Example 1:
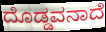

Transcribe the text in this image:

ದೊಡ್ಡವನಾದೆ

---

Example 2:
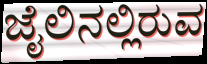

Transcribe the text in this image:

ಜೈಲಿನಲ್ಲಿರುವ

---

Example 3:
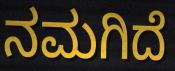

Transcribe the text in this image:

ನಮಗಿದೆ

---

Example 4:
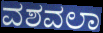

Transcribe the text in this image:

ವಶವಲಾ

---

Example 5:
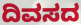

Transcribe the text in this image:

ದಿವಸದ